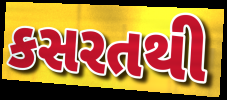
કસરતથી